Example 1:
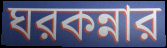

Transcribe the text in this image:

ঘরকন্নার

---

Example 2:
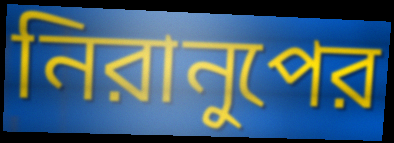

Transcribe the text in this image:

নিরানুপের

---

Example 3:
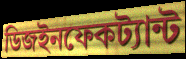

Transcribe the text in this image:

ডিজইনফেকট্যান্ট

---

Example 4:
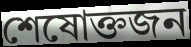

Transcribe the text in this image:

শেষোক্তজন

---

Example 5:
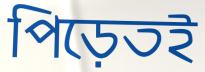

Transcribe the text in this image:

পিড়েতই